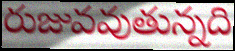
రుజువవుతున్నది